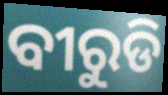
ବୀରୁଡି